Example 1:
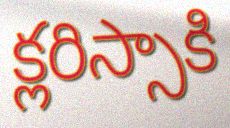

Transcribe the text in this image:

క్లరిస్సాకి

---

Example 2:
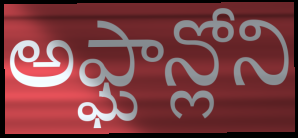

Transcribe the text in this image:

అఫ్ఘాన్లోని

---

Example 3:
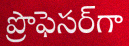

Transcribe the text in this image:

ప్రొఫెసర్‌గా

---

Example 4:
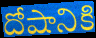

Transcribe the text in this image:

దోషానికి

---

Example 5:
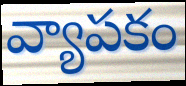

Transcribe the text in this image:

వ్యాపకం